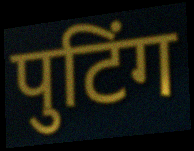
पुटिंग